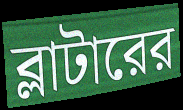
ব্লাটারের